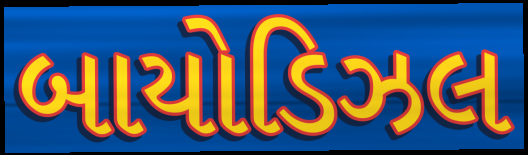
બાયોડિઝલ